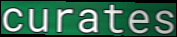
curates